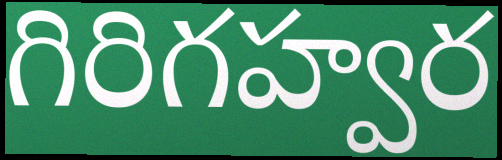
గిరిగహ్వర